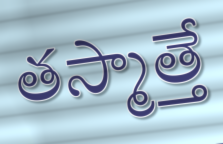
తస్మాత్తే